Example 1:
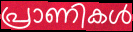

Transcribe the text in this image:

പ്രാണികൾ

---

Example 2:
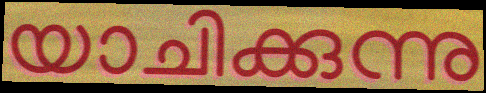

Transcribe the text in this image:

യാചിക്കുന്നു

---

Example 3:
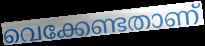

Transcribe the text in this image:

വെക്കേണ്ടതാണ്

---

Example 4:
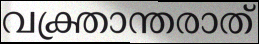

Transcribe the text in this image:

വക്ത്രാന്തരാത്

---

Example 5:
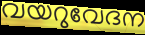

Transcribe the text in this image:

വയറുവേദന